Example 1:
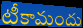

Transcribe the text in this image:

టీకామందు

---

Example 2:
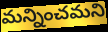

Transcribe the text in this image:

మన్నించమని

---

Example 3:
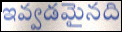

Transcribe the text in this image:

ఇవ్వడమైనది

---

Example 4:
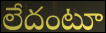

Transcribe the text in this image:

లేదంటూ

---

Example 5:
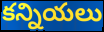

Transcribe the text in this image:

కన్నియలు